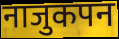
नाजुकपन